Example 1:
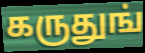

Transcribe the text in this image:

கருதுங்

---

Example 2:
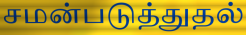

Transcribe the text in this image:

சமன்படுத்துதல்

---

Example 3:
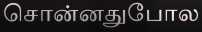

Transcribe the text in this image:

சொன்னதுபோல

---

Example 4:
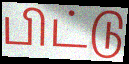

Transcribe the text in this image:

பிட்டு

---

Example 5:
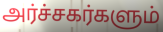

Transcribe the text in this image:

அர்ச்சகர்களும்